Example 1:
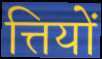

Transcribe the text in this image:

त्तियों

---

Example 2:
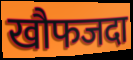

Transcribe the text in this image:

खौफजदा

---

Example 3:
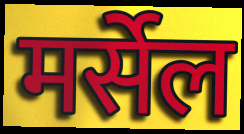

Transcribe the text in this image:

मर्सेल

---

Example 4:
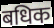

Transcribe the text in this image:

बधिक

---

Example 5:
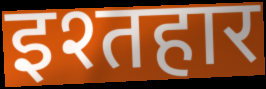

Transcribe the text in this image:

इश्तहार